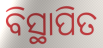
ବିସ୍ଥାପିତ